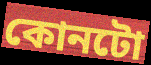
কোনটো